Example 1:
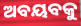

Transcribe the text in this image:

ଅବୟବକୁ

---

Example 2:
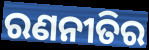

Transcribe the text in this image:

ରଣନୀତିର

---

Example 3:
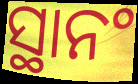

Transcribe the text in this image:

ସ୍ଥାନଂ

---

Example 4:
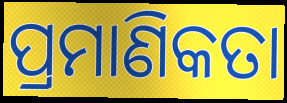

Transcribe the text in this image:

ପ୍ରମାଣିକତା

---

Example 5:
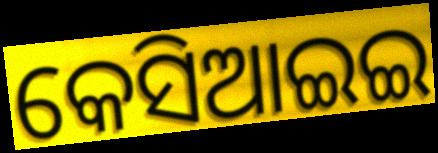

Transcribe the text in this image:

କେସିଆଇଇ